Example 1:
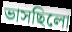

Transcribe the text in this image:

ভাসছিলো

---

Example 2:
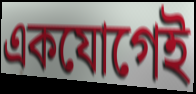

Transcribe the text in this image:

একযোগেই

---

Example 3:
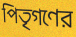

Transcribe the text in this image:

পিতৃগণের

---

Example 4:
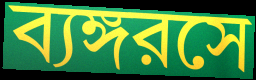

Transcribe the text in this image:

ব্যঙ্গরসে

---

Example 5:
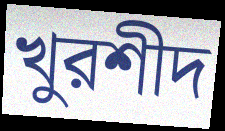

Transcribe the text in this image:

খুরশীদ